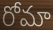
రోమా